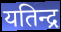
यतिन्द्र